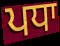
ਪਧਾ